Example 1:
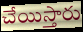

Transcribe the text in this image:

చేయిస్తారు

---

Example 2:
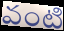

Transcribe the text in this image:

వంటి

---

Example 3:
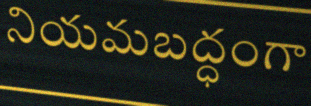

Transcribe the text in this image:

నియమబద్ధంగా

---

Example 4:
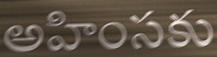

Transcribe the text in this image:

అహింసకు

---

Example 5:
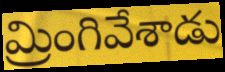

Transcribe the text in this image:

మ్రింగివేశాడు